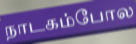
நாடகம்போல